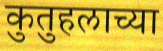
कुतुहलाच्या